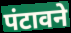
पंटावने